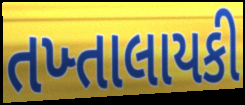
તખ્તાલાયકી